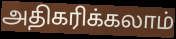
அதிகரிக்கலாம்